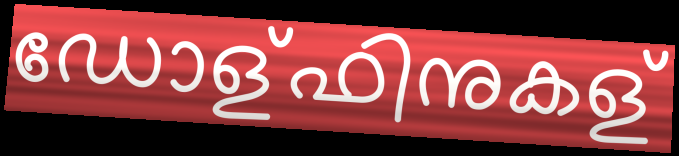
ഡോള്ഫിനുകള്